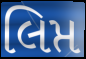
લિપ્ત